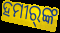
ହମୀର୍‍ଙ୍କ